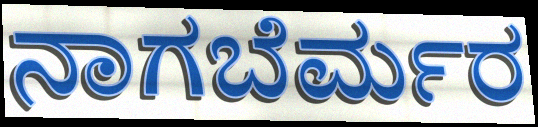
ನಾಗಬೆರ್ಮರ